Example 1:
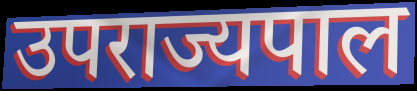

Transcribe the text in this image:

उपराज्यपाल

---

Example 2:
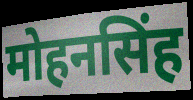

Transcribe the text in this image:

मोहनसिंह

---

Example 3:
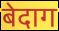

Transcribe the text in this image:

बेदाग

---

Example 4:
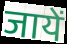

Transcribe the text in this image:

जायें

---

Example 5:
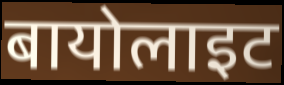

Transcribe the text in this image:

बायोलाइट